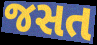
જસત